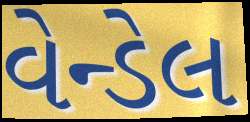
વેન્ડેલ